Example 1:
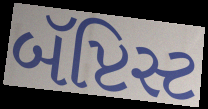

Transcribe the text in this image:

બૅપ્ટિસ્ટ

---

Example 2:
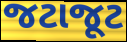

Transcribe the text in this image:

જટાજૂટ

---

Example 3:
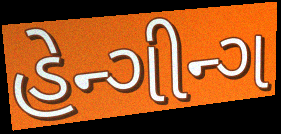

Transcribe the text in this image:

હેન્ગીન્ગ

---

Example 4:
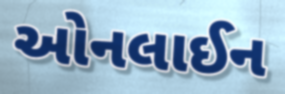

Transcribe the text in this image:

ઓનલાઈન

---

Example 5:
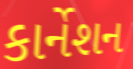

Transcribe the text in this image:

કાર્નેશન